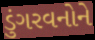
ડુંગરવનોને